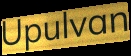
Upulvan